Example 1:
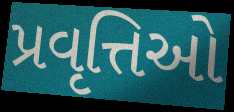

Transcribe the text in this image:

પ્રવૃત્તિઓ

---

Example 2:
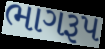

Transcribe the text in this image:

ભાગરૂપ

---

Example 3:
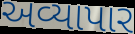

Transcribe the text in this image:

અવ્યાપાર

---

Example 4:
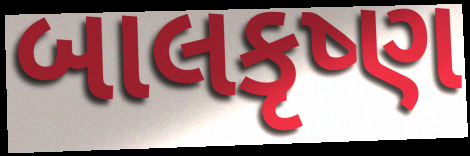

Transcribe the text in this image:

બાલકૃષ્ણ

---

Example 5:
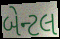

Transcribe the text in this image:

બેન્ટલ